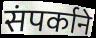
संपर्काने